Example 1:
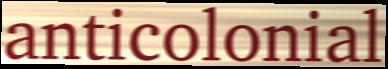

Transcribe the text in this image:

anticolonial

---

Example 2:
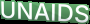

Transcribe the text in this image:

UNAIDS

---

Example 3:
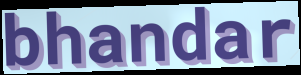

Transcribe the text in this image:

bhandar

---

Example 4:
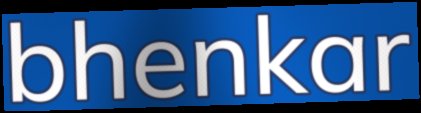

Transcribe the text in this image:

bhenkar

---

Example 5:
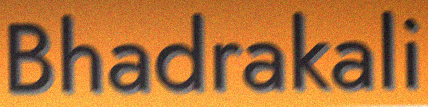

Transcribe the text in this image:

Bhadrakali